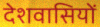
देशवासियों